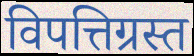
विपत्तिग्रस्त